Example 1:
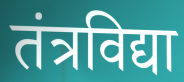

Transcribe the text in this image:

तंत्रविद्या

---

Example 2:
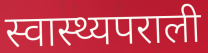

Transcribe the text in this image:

स्वास्थ्यपराली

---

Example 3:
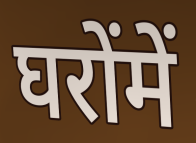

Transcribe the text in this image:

घरोंमें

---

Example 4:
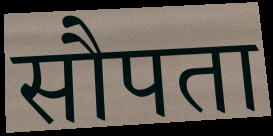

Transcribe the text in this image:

सौपता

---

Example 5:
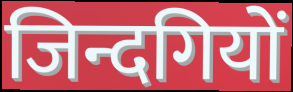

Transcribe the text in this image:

जिन्दगियों